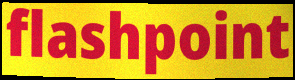
flashpoint